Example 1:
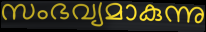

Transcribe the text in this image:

സംഭവ്യമാകുന്നു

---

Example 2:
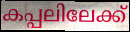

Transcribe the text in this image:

കപ്പലിലേക്ക്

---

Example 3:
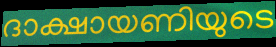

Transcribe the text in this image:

ദാക്ഷായണിയുടെ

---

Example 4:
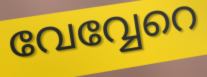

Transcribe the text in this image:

വേവ്വേറെ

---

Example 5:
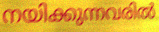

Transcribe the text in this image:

നയിക്കുന്നവരിൽ